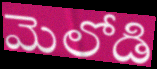
మెలోడి